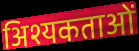
अिश्यकताओं